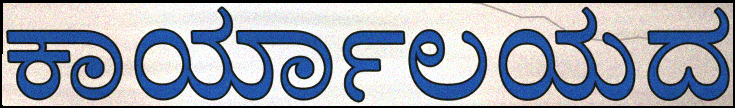
ಕಾರ್ಯಾಲಯದ